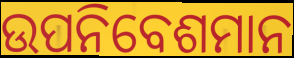
ଉପନିବେଶମାନ